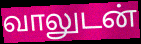
வாலுடன்